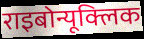
राइबोन्यूक्लिक